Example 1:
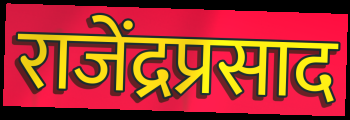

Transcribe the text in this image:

राजेंद्रप्रसाद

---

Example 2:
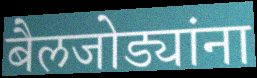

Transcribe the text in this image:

बैलजोड्यांना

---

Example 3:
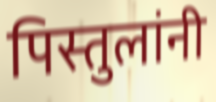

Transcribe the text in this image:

पिस्तुलांनी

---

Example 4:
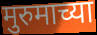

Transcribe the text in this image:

मुरुमाच्या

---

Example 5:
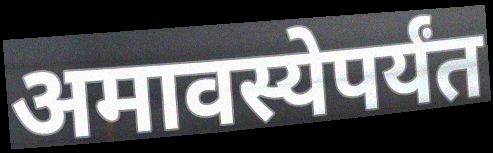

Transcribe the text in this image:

अमावस्येपर्यंत